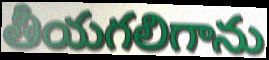
తీయగలిగాను